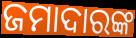
ଜମାଦାରଙ୍କ